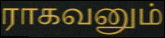
ராகவனும்